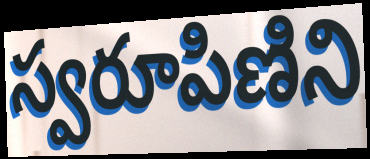
స్వరూపిణిని